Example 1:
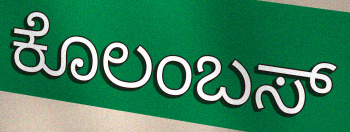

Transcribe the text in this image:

ಕೊಲಂಬಸ್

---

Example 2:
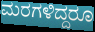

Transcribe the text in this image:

ಮರಗಳಿದ್ದರೂ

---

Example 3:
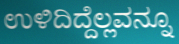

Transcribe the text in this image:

ಉಳಿದಿದ್ದೆಲ್ಲವನ್ನೂ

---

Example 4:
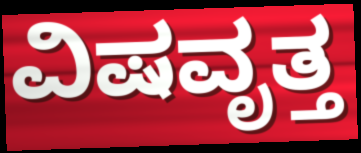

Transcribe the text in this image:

ವಿಷವೃತ್ತ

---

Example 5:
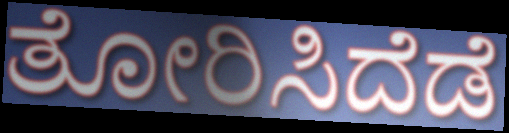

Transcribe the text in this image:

ತೋರಿಸಿದೆಡೆ